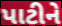
પાટીને